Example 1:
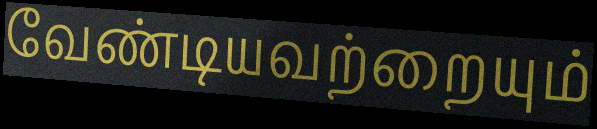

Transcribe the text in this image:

வேண்டியவற்றையும்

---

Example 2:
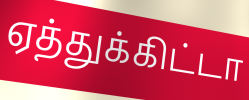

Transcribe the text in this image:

ஏத்துக்கிட்டா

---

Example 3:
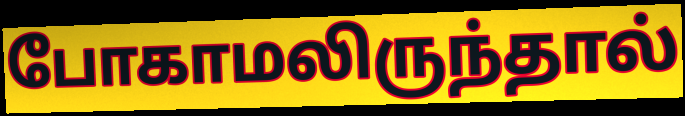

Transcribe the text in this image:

போகாமலிருந்தால்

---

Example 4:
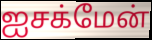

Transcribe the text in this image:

ஐசக்மேன்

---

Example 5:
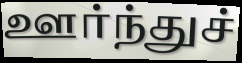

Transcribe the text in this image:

ஊர்ந்துச்